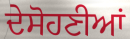
ਦੇਸੋਹਣੀਆਂ